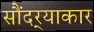
सौंदर्याकार